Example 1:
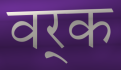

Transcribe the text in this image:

वर्क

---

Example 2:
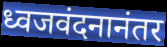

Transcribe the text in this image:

ध्वजवंदनानंतर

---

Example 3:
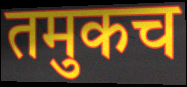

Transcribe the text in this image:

तमुकच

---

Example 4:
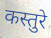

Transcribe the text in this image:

कस्तुरे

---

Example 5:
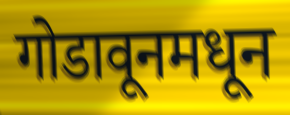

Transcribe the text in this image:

गोडावूनमधून